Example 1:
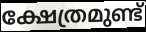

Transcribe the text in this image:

ക്ഷേത്രമുണ്ട്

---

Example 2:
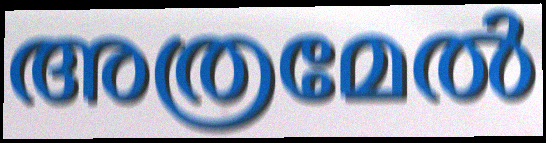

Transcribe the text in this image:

അത്രമേൽ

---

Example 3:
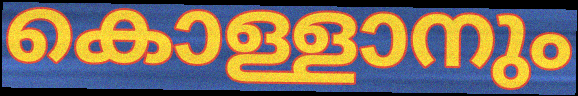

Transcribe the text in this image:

കൊള്ളാനും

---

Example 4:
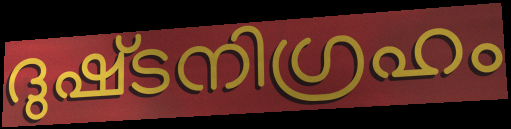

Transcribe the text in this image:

ദുഷ്‌ടനിഗ്രഹം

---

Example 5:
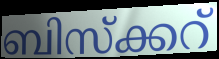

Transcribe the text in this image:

ബിസ്ക്കറ്